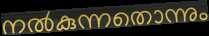
നൽകുന്നതൊന്നും